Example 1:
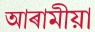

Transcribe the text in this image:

আৰামীয়া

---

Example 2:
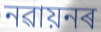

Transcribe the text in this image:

নৱায়নৰ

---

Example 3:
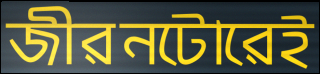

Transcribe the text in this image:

জীৱনটোৱেই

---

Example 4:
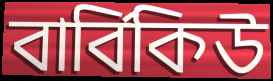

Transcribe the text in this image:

বাৰ্বিকিউ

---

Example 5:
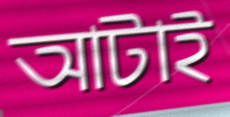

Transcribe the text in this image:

আটাই